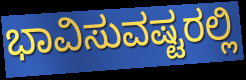
ಭಾವಿಸುವಷ್ಟರಲ್ಲಿ